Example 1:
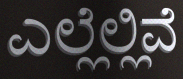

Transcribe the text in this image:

ಎಲ್ಲೆಲ್ಲಿವೆ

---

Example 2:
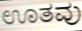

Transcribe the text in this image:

ಊತವು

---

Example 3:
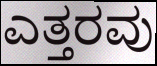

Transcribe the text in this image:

ಎತ್ತರವು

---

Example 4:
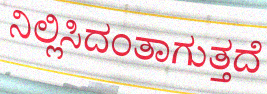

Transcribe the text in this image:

ನಿಲ್ಲಿಸಿದಂತಾಗುತ್ತದೆ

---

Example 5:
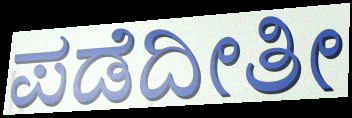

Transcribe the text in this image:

ಪಡೆದೀತೀ